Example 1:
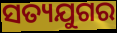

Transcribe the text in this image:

ସତ୍ୟଯୁଗର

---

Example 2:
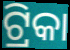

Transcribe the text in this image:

ଟ୍ରିକା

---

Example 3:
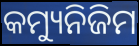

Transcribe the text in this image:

କମ୍ୟୁନିଜିମ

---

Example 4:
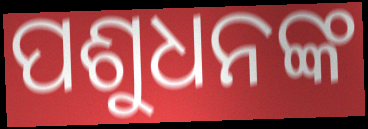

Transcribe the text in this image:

ପଶୁଧନଙ୍କ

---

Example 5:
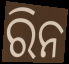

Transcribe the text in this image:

ରିନ